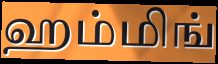
ஹம்மிங்